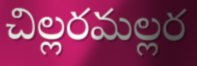
చిల్లరమల్లర